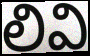
లివి